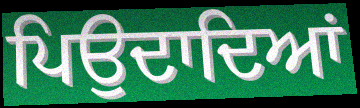
ਪਿਉਦਾਦਿਆਂ